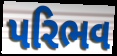
પરિભવ